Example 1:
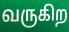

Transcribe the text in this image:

வருகிற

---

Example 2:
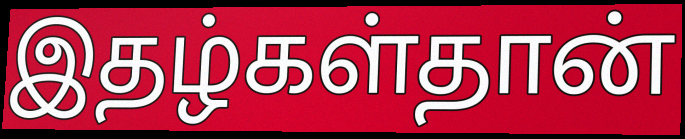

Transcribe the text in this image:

இதழ்கள்தான்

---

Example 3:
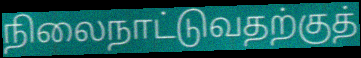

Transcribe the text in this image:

நிலைநாட்டுவதற்குத்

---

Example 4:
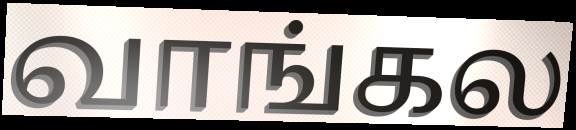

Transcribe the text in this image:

வாங்கல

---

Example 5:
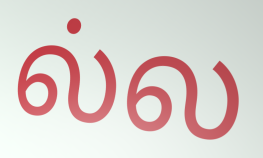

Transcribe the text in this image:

ல்ல